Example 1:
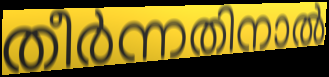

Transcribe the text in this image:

തീർന്നതിനാൽ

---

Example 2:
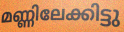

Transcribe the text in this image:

മണ്ണിലേക്കിട്ടു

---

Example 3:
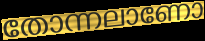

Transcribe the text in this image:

തോന്നലാണോ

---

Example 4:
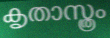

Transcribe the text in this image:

കൃതാസ്ത്രം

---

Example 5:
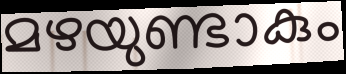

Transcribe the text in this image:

മഴയുണ്ടാകും